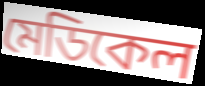
মেডিকেল